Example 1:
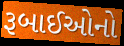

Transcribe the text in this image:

રૂબાઈઓનો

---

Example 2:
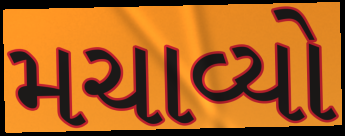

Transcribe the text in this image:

મચાવ્યો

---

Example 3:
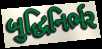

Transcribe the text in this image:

બુદ્ધિનિર્ભર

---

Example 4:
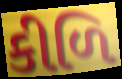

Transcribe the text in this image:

કીળિ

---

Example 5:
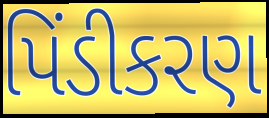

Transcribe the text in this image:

પિંડીકરણ